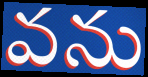
వను